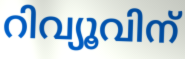
റിവ്യൂവിന്